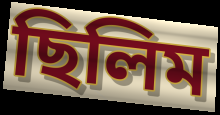
ছিলিম